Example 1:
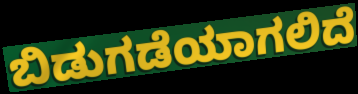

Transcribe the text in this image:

ಬಿಡುಗಡೆಯಾಗಲಿದೆ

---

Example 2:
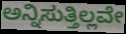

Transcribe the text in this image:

ಅನ್ನಿಸುತ್ತಿಲ್ಲವೇ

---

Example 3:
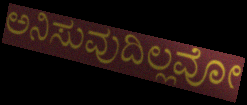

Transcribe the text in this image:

ಅನಿಸುವುದಿಲ್ಲವೋ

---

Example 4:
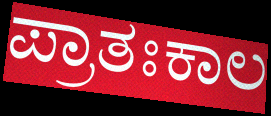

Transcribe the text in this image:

ಪ್ರಾತಃಕಾಲ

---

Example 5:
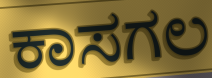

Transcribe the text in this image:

ಕಾಸಗಲ